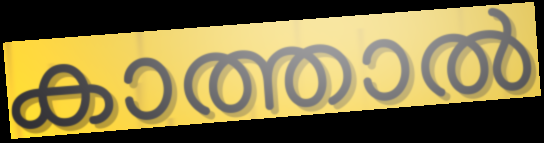
കാത്താൽ